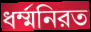
ধর্ম্মনিরত